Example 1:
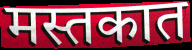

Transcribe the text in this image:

मस्तकात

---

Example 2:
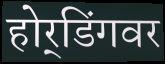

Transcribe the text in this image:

होर्डिंगवर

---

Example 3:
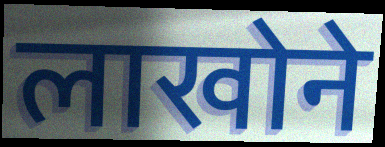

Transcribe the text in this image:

लाखोने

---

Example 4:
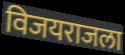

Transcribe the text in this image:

विजयराजला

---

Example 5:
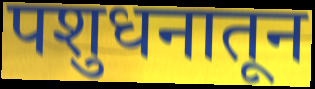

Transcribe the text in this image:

पशुधनातून